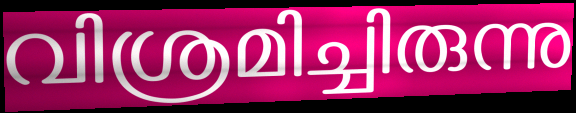
വിശ്രമിച്ചിരുന്നു